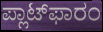
ಪ್ಲಾಟ್‌ಫಾರಂ